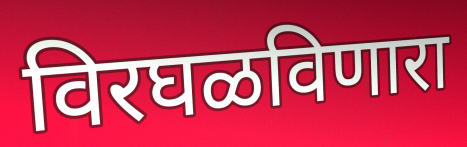
विरघळविणारा